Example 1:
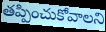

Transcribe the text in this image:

తప్పించుకోవాలని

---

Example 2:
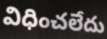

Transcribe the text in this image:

విధించలేదు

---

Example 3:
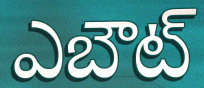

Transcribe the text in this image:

ఎబౌట్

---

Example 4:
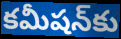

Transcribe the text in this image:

కమీషన్‌కు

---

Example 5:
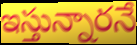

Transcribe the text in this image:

ఇస్తున్నారనే